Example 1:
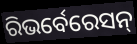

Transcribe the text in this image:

ରିଭର୍ବେରେସନ୍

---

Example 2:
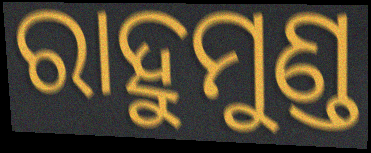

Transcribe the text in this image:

ରାହୁମୁଣ୍ଡ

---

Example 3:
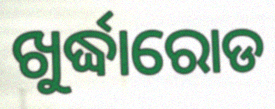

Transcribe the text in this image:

ଖୁର୍ଦ୍ଧାରୋଡ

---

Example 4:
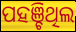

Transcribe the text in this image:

ପହଞ୍ଚିଥିଲ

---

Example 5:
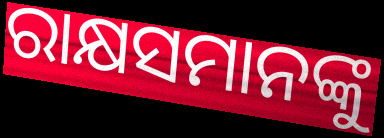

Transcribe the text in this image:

ରାକ୍ଷସମାନଙ୍କୁ